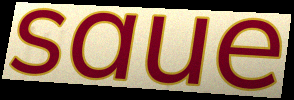
saue